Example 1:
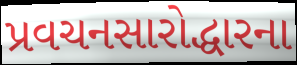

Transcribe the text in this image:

પ્રવચનસારોદ્ધારના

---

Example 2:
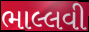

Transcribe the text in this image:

ભાલ્લવી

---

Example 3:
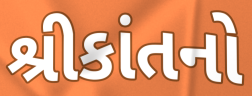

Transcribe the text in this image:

શ્રીકાંતનો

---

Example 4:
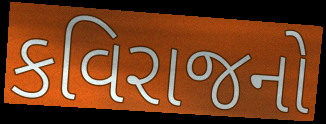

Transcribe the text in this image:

કવિરાજનો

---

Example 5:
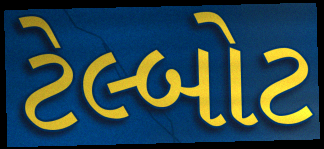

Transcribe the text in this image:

ટેલ્બોટ